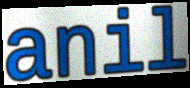
anil